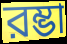
রম্ভা